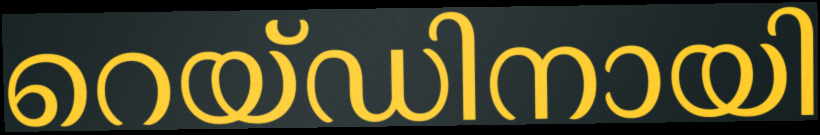
റെയ്ഡിനായി